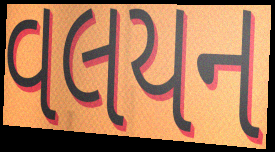
વલયન